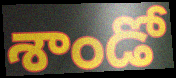
శాండో